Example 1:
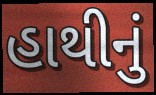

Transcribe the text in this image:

હાથીનું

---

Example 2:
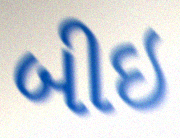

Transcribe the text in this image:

બીઇ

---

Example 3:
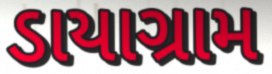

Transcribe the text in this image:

ડાયાગ્રામ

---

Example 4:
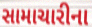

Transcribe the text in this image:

સામાચારીના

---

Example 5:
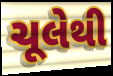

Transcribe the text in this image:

ચૂલેથી